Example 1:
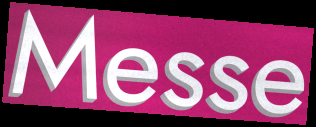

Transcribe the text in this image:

Messe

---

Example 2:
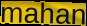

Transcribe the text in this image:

mahan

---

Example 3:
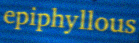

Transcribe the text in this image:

epiphyllous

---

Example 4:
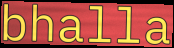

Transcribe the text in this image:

bhalla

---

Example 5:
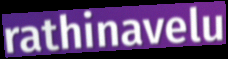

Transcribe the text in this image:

rathinavelu